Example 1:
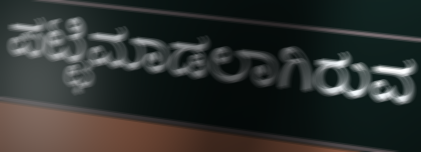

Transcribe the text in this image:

ಪಟ್ಟಿಮಾಡಲಾಗಿರುವ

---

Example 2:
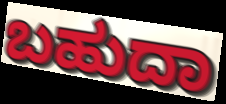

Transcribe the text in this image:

ಬಹುದಾ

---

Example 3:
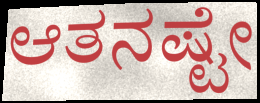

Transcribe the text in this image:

ಆತನಷ್ಟೇ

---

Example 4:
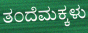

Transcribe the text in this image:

ತಂದೆಮಕ್ಕಳು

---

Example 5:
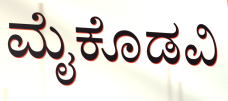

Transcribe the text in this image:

ಮೈಕೊಡವಿ